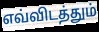
எவ்விடத்தும்